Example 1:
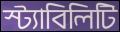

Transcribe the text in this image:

স্ট্যাবিলিটি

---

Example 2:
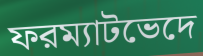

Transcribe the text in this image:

ফরম্যাটভেদে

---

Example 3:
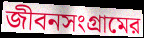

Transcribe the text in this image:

জীবনসংগ্রামের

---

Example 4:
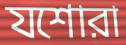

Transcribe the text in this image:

যশোরা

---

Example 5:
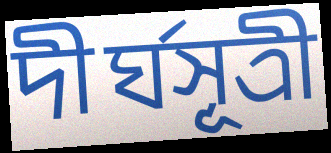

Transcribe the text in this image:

দীর্ঘসূত্রী